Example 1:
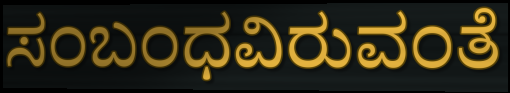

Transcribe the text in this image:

ಸಂಬಂಧವಿರುವಂತೆ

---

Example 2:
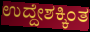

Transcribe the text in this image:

ಉದ್ದೇಶಕ್ಕಿಂತ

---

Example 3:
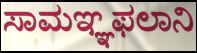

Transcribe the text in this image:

ಸಾಮಞ್ಞಫಲಾನಿ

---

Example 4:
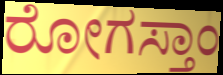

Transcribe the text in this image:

ರೋಗಸ್ತಾಂ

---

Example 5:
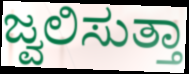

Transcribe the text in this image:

ಜ್ವಲಿಸುತ್ತಾ